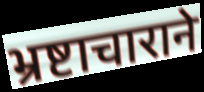
भ्रष्टाचाराने